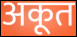
अकूत